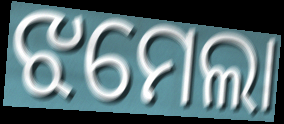
ଝମେଲା